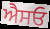
ਐਸਓ